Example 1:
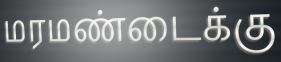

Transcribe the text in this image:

மரமண்டைக்கு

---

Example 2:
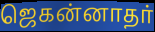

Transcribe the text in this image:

ஜெகன்னாதர்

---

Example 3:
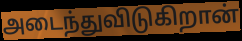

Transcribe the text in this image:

அடைந்துவிடுகிறான்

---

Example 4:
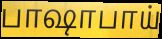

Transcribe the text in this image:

பாஷாபாய்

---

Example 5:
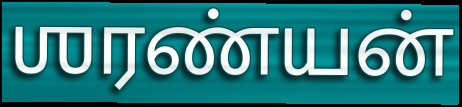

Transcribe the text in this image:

ஶரண்யன்